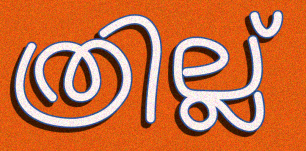
ത്രില്ല്